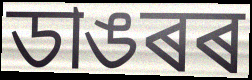
ডাঙৰৰ